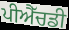
ਪੀਐੱਚਡੀ